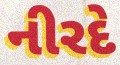
નીરદે